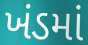
ખંડમાં